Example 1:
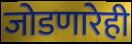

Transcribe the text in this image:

जोडणारेही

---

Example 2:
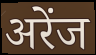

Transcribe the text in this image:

अरेंज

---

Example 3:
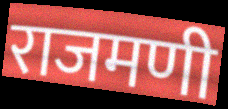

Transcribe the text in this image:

राजमणी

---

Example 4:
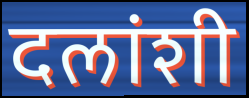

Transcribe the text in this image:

दलांशी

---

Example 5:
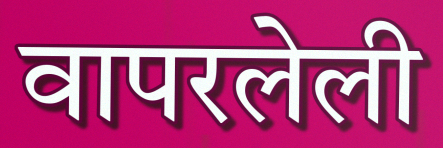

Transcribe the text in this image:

वापरलेली